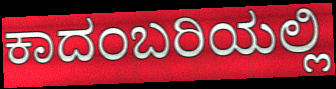
ಕಾದಂಬರಿಯಲ್ಲಿ